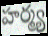
హర్మ్య